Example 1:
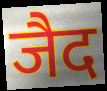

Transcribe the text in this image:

जैद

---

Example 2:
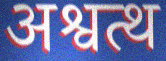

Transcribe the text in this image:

अश्वत्थ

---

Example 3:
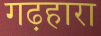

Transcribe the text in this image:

गढ़हारा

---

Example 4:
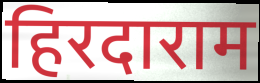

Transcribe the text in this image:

हिरदाराम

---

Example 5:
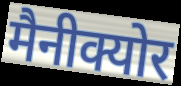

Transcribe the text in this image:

मैनीक्योर